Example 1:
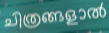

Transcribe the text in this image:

ചിത്രങ്ങളാൽ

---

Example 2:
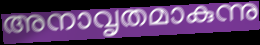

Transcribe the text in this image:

അനാവൃതമാകുന്നു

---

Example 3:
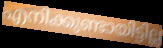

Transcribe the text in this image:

എനിക്കുണ്ടായിട്ടില്ല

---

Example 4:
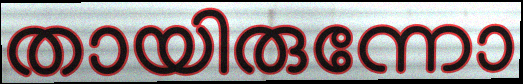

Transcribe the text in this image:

തായിരുന്നോ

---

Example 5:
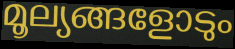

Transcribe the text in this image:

മൂല്യങ്ങളോടും